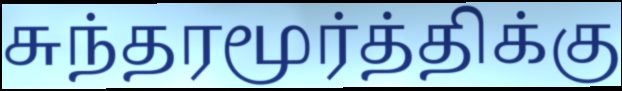
சுந்தரமூர்த்திக்கு